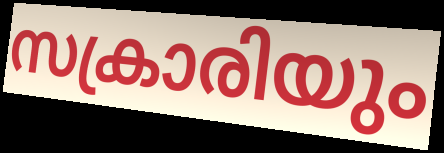
സക്രാരിയും